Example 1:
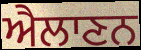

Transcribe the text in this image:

ਐਲਾਣਨ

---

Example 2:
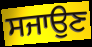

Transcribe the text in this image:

ਸਜਾਉਣ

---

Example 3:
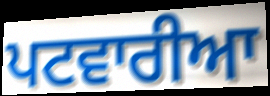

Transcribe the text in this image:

ਪਟਵਾਰੀਆ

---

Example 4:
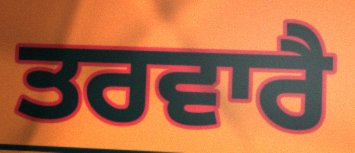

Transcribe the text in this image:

ਤਰਵਾਰੈ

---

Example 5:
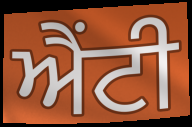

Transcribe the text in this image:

ਐਂਟੀ